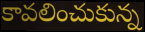
కావలించుకున్న